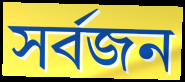
সৰ্বজন